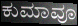
ಕುಮಾವೂ